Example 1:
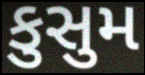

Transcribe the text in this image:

કુસુમ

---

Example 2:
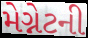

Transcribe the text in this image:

મેગ્નેટની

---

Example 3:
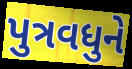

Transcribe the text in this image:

પુત્રવધુને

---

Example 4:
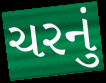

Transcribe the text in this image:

ચરનું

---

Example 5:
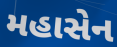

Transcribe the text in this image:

મહાસેન